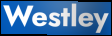
Westley